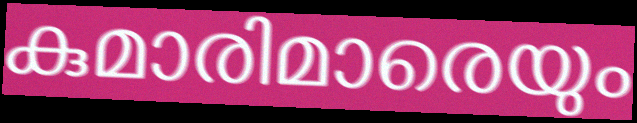
കുമാരിമാരെയും